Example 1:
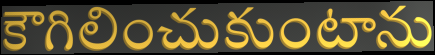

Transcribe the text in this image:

కౌగిలించుకుంటాను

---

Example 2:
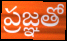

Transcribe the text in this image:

ప్రజ్ఞతో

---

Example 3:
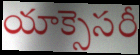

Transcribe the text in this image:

యాక్సెసరీ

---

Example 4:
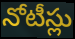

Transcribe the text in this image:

నోటీస్లు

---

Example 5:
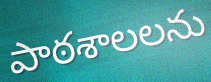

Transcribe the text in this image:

పాఠశాలలను